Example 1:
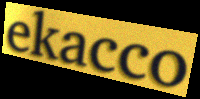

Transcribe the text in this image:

ekacco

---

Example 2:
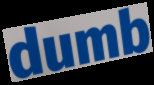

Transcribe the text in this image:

dumb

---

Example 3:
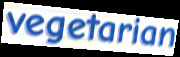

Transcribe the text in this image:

vegetarian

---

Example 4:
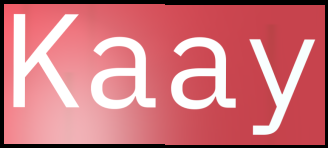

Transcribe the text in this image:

Kaay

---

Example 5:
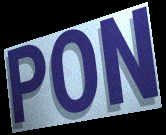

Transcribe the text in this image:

PON